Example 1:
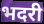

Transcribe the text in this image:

भदरी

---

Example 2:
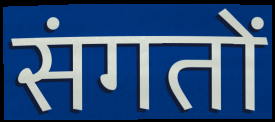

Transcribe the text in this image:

संगतों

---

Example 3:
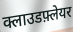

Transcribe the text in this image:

क्लाउडफ़्लेयर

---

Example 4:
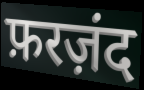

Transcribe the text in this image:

फ़रज़ंद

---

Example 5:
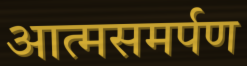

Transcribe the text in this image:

आत्मसमर्पण